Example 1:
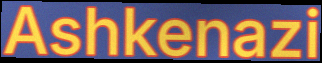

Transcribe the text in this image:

Ashkenazi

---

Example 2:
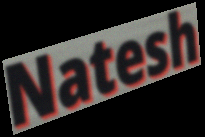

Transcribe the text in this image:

Natesh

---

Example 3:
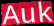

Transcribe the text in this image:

Auk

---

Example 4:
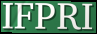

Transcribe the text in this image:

IFPRI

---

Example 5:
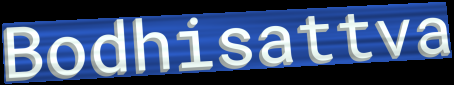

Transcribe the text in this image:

Bodhisattva